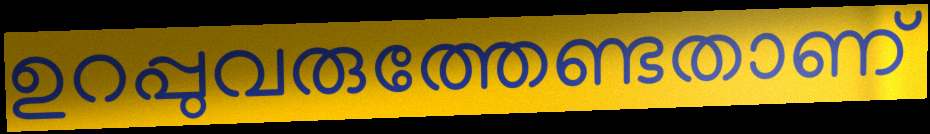
ഉറപ്പുവരുത്തേണ്ടതാണ്